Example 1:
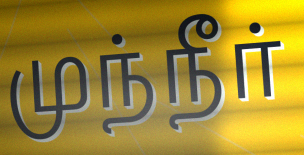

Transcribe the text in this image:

முந்நீர்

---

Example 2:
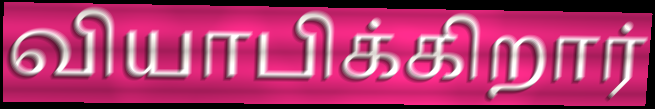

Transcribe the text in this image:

வியாபிக்கிறார்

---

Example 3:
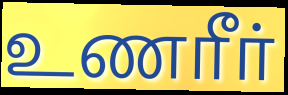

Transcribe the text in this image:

உணரீர்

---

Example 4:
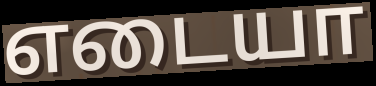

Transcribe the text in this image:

எடையா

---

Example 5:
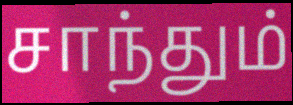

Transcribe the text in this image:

சாந்தும்